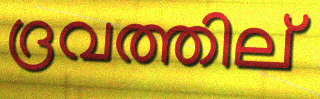
ദ്രവത്തില്